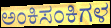
ಅಂಕಿಸಂಕಿಗಳ